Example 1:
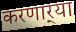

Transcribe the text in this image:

करणार्या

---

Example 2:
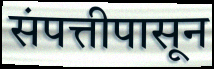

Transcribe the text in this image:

संपत्तीपासून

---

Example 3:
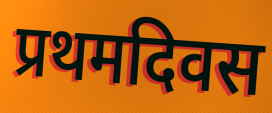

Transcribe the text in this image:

प्रथमदिवस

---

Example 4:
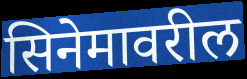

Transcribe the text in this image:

सिनेमावरील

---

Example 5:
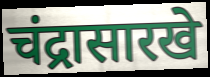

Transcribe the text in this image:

चंद्रासारखे